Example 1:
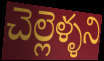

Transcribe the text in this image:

చెల్లెళ్ళని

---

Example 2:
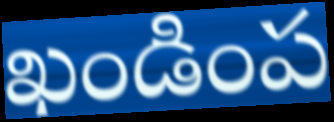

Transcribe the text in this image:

ఖండింప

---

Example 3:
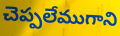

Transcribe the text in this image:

చెప్పలేముగాని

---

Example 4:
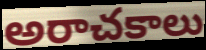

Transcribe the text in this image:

అరాచకాలు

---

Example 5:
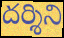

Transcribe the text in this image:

దర్శిని